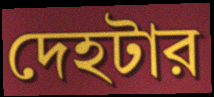
দেহটার